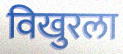
विखुरला